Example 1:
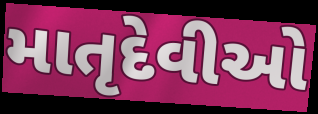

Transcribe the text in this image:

માતૃદેવીઓ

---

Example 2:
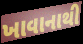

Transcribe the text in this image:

ખાવાનાથી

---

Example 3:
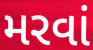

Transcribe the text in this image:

મરવાં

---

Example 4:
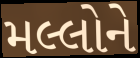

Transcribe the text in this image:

મલ્લોને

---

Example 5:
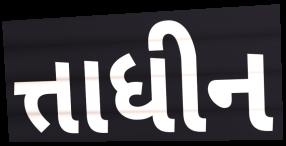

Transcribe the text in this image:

ત્તાધીન